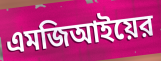
এমজিআইয়ের